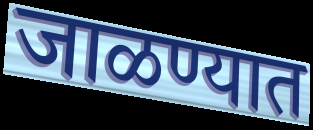
जाळण्यात